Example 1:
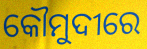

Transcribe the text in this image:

କୌମୁଦୀରେ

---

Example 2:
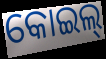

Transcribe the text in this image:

କୋଇଲ୍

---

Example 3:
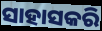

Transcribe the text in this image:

ସାହାସକରି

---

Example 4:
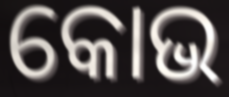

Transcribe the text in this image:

କୋଭ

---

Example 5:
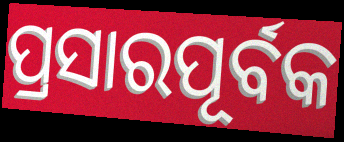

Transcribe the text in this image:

ପ୍ରସାରପୂର୍ବକ